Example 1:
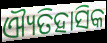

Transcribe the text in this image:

ଐ୍ୟତିହାସିକ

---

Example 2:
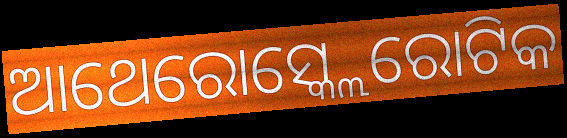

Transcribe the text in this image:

ଆଥେରୋସ୍କ୍ଲେରୋଟିକ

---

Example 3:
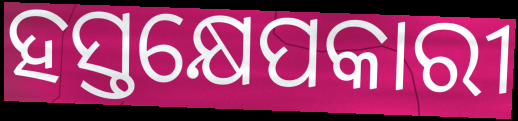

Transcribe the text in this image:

ହସ୍ତକ୍ଷେପକାରୀ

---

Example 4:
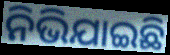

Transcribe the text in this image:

ନିଭିଯାଇଛି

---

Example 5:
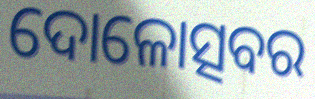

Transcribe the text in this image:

ଦୋଳୋତ୍ସବର